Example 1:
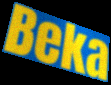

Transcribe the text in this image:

Beka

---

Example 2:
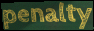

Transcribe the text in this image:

penalty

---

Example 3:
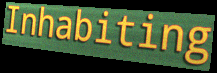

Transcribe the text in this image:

Inhabiting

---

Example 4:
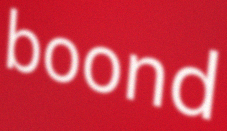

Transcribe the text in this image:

boond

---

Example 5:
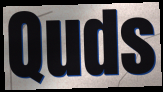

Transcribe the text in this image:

Quds